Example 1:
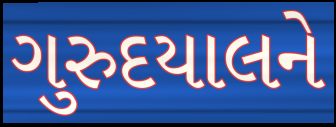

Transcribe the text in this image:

ગુરુદયાલને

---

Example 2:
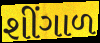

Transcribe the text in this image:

શીંગાળ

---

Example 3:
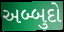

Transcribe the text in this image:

અબ્બુદો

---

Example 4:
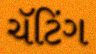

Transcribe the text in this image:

ચૅટિંગ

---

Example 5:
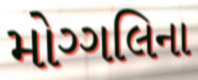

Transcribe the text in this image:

મોગ્ગલિના